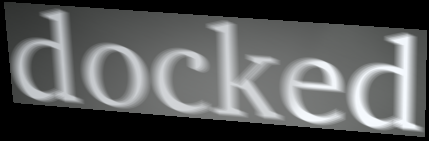
docked